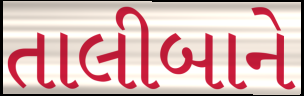
તાલીબાને